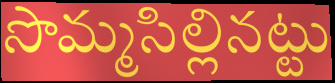
సొమ్మసిల్లినట్టు